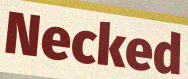
Necked